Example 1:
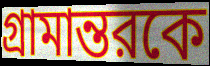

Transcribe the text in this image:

গ্রামান্তরকে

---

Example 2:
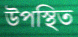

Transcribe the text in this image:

উপস্থিত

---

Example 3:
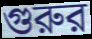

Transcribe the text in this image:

গুরুর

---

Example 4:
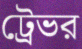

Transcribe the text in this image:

ট্রেভর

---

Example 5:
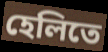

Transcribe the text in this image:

হেলিতে